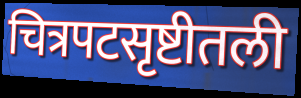
चित्रपटसृष्टीतली